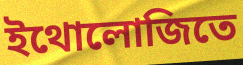
ইথোলোজিতে